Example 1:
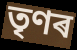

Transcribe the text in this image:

তৃণৰ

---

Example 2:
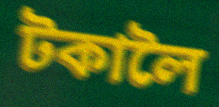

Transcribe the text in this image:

টকালৈ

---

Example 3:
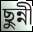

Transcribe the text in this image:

ছুন্নী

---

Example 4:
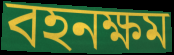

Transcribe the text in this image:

বহনক্ষম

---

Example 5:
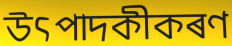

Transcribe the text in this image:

উৎপাদকীকৰণ